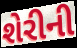
શેરીની